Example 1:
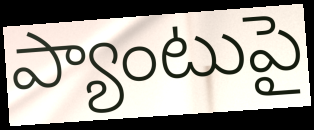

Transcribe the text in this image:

ప్యాంటుపై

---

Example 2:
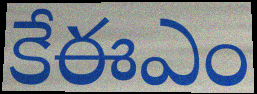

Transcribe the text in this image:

కేఈఎం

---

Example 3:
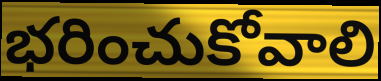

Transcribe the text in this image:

భరించుకోవాలి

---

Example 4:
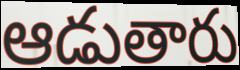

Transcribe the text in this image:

ఆడుతారు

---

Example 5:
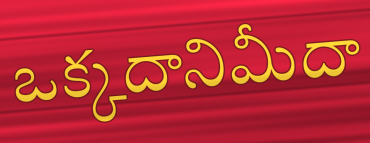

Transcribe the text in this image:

ఒక్కదానిమీదా